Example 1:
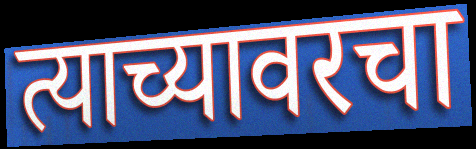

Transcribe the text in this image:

त्याच्यावरचा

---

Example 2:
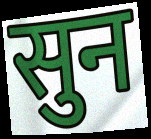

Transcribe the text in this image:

सुन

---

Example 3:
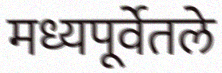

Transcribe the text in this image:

मध्यपूर्वेतले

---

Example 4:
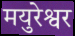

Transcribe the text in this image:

मयुरेश्वर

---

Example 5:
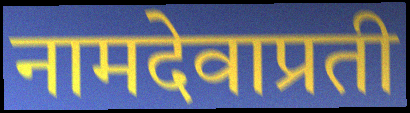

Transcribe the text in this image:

नामदेवाप्रती